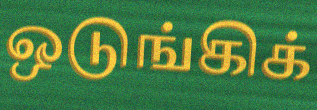
ஒடுங்கிக்